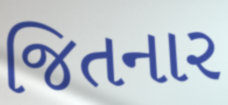
જિતનાર